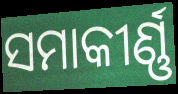
ସମାକୀର୍ଣ୍ଣ